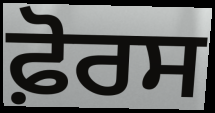
ਫ਼ੋਰਸ